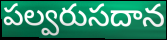
పల్వరుసదాన